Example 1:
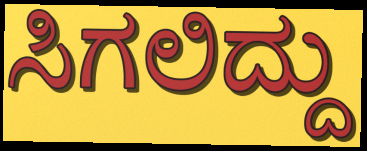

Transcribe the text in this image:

ಸಿಗಲಿದ್ದು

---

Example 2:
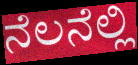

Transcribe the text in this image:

ನೆಲನೆಲ್ಲಿ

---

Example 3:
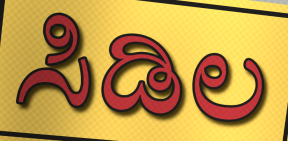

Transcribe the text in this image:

ಸಿಡಿಲ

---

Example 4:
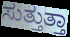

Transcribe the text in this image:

ಸುತ್ತುತ್ತಾ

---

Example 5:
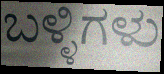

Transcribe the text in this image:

ಬಳ್ಳಿಗಳು